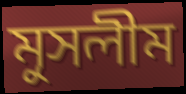
মুসলীম